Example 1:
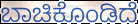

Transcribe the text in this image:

ಬಾಚಿಕೊಂಡಿದೆ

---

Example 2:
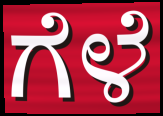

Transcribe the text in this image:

ಗೆಳೆ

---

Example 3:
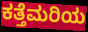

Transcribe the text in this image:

ಕತ್ತೆಮರಿಯ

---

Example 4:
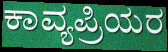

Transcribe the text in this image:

ಕಾವ್ಯಪ್ರಿಯರ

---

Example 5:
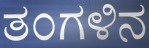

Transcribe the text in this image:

ತಂಗಳಿನ